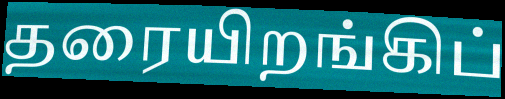
தரையிறங்கிப்